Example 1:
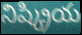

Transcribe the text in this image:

నిష్క్రియ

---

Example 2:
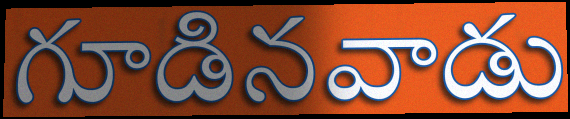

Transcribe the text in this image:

గూడినవాడు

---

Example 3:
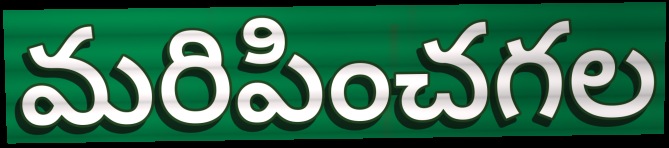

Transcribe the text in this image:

మరిపించగల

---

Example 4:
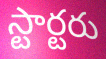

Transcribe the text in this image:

స్టార్టరు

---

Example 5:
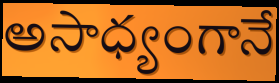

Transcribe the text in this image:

అసాధ్యంగానే